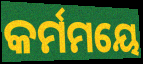
କର୍ମମୟେ